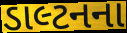
ડાલ્ટનના